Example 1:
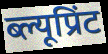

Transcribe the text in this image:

ब्ल्यूप्रिंट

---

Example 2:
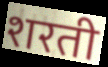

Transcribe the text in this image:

शरती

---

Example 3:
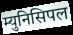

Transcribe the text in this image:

म्युनिसिपल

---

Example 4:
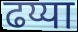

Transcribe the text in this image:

ढय्या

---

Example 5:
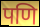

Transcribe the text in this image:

पणि